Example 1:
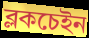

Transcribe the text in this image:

ব্লকচেইন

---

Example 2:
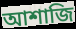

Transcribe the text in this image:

আশাজি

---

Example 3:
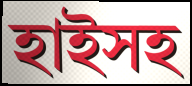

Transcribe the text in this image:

হাইসহ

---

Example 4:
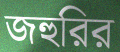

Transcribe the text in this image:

জহুরির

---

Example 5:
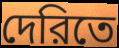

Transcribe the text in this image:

দেরিতে